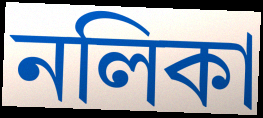
নলিকা